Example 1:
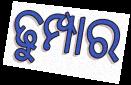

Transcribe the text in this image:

ଢୁମ୍ପାର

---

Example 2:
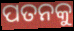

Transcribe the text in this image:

ପତନକୁ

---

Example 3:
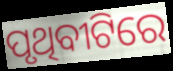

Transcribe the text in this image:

ପୃଥିବୀଟିରେ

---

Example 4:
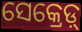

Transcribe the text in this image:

ସେକ୍ରେଡ଼୍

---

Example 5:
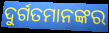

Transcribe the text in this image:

ଦୁର୍ଗତମାନଙ୍କର